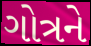
ગોત્રને